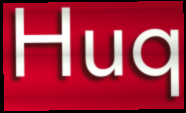
Huq